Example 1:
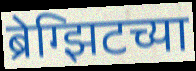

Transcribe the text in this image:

ब्रेग्झिटच्या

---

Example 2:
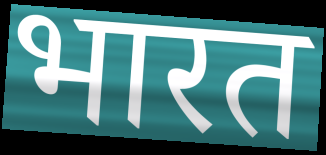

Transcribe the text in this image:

भारत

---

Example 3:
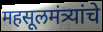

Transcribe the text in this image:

महसूलमंत्र्यांचे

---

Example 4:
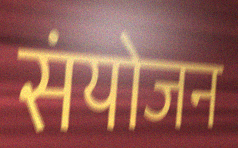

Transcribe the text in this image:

संयोजन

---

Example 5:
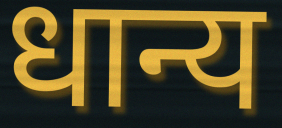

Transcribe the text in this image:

धान्य